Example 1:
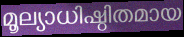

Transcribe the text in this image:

മൂല്യാധിഷ്ഠിതമായ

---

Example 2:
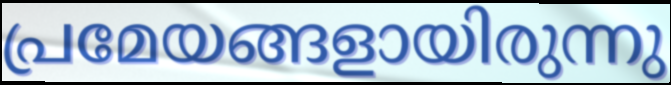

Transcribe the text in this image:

പ്രമേയങ്ങളായിരുന്നു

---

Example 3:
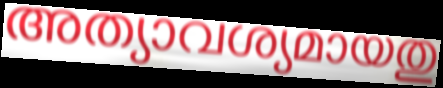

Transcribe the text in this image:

അത്യാവശ്യമായതു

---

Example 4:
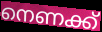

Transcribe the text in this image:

നെണക്ക്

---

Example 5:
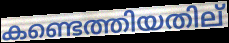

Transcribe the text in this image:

കണ്ടെത്തിയതില്